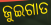
ଜୁଇଗାତ